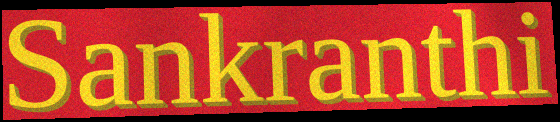
Sankranthi